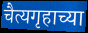
चैत्यगृहाच्या